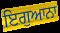
ਇਗੁਆਨਾ